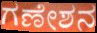
ಗಣೇಶನ